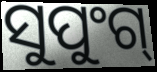
ସୁପୁଂଗ୍